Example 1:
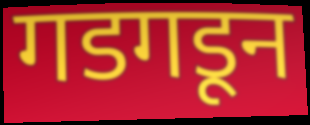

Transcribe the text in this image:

गडगडून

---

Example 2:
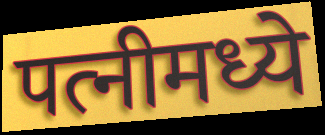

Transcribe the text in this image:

पत्नीमध्ये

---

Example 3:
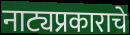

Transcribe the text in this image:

नाट्यप्रकाराचे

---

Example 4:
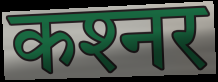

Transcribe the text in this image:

कश्‍नर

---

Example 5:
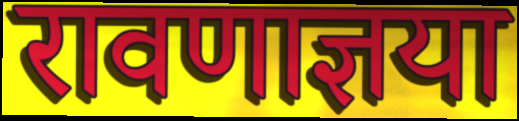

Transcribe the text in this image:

रावणाज्ञया